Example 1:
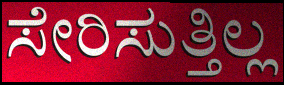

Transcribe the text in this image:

ಸೇರಿಸುತ್ತಿಲ್ಲ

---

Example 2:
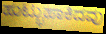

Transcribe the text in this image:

ಹುಟ್ಟುಹಾಕಿದವು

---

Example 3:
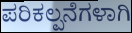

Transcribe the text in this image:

ಪರಿಕಲ್ಪನೆಗಳಾಗಿ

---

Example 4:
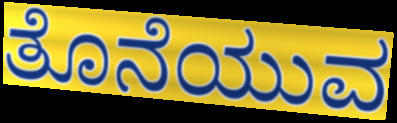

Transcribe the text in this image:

ತೊನೆಯುವ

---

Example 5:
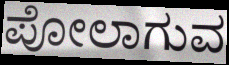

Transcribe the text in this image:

ಪೋಲಾಗುವ